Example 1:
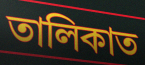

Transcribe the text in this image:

তালিকাত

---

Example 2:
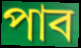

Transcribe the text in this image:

পাব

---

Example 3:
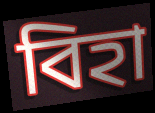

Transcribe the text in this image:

বিহা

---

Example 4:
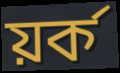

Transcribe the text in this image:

য়ৰ্ক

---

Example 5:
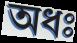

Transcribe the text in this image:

অধঃ